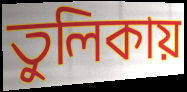
তুলিকায়